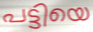
പട്ടിയെ